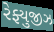
રેફ્યુજીઝ